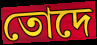
তোদে